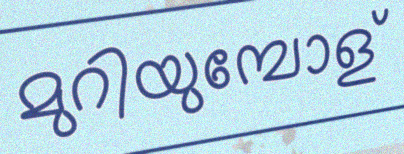
മുറിയുമ്പോള്